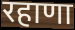
रहाणा